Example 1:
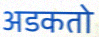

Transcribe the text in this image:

अडकतो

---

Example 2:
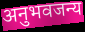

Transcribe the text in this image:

अनुभवजन्य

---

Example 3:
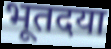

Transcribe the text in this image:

भूतदया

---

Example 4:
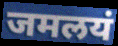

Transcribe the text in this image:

जमलयं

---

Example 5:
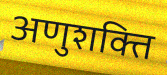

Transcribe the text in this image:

अणुशक्ति